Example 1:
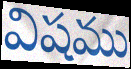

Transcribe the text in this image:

విషము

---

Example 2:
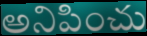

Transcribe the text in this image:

అనిపించు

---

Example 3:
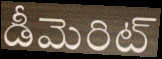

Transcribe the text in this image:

డీమెరిట్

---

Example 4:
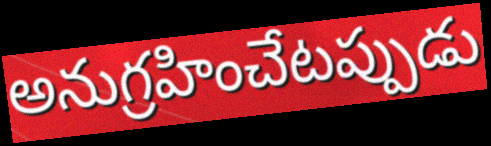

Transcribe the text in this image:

అనుగ్రహించేటప్పుడు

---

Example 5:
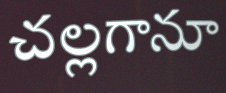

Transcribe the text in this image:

చల్లగానూ